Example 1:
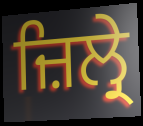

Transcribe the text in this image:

ਜ਼ਿਲ੍ਰੇ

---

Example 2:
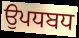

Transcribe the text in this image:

ਉਪਧਬਧ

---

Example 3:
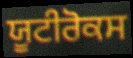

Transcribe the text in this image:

ਯੂਟੀਰੋਕਸ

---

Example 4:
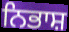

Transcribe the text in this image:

ਨਿਭਾਸ਼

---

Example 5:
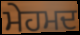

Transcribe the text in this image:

ਮੇਹਮਦ